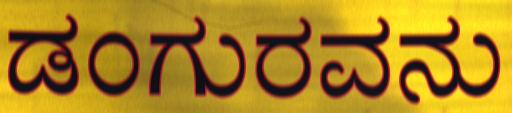
ಡಂಗುರವನು